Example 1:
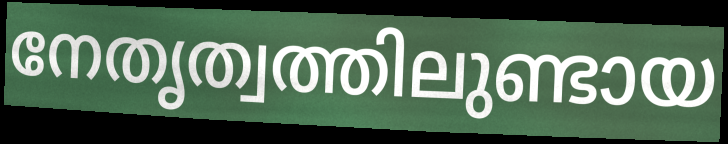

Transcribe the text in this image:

നേതൃത്വത്തിലുണ്ടായ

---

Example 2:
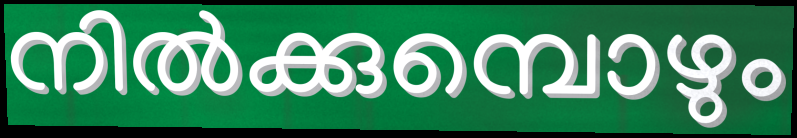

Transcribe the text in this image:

നിൽക്കുമ്പൊഴും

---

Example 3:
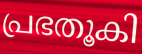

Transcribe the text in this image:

പ്രഭതൂകി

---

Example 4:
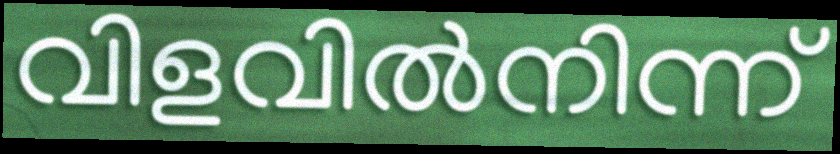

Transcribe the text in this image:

വിളവിൽനിന്ന്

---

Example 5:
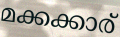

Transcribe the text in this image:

മക്കക്കാര്